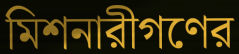
মিশনারীগণের